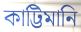
কাট্টিমানি